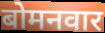
बोमनवार